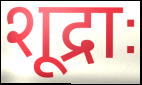
शूद्राः